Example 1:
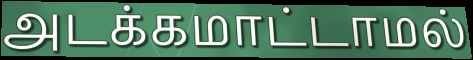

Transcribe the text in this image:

அடக்கமாட்டாமல்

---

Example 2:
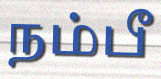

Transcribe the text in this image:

நம்பீ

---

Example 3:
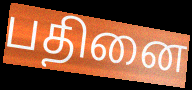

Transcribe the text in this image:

பதினை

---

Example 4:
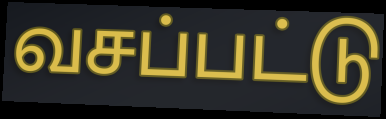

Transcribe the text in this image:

வசப்பட்டு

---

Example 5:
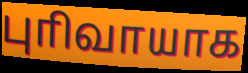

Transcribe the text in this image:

புரிவாயாக